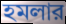
হমলার